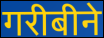
गरीबीने